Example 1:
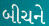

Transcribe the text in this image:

બીચને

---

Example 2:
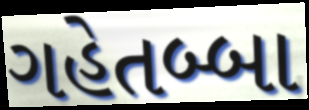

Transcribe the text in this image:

ગહેતબ્બા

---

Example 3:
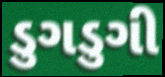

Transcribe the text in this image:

ડુગડુગી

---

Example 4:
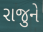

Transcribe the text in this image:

રાજુને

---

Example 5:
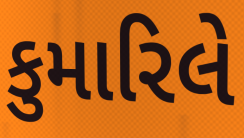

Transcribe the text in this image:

કુમારિલે